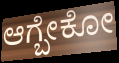
ಆಗ್ಬೇಕೋ